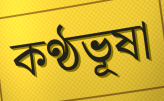
কণ্ঠভূষা